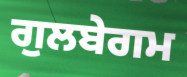
ਗੁਲਬੇਗਮ